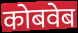
कोबवेब